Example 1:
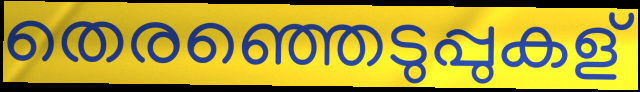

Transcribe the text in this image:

തെരഞ്ഞെടുപ്പുകള്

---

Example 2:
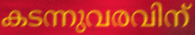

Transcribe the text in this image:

കടന്നുവരവിന്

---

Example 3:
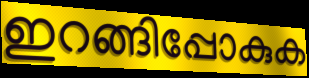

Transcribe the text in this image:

ഇറങ്ങിപ്പോകുക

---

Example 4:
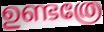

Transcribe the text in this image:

ഉണ്ടത്രേ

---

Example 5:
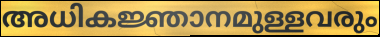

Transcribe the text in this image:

അധികജ്ഞാനമുള്ളവരും